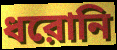
ধরোনি